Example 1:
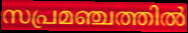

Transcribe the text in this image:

സപ്രമഞ്ചത്തിൽ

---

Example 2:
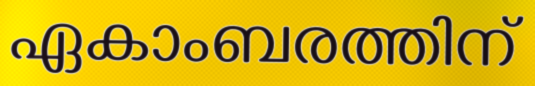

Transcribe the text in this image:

ഏകാംബരത്തിന്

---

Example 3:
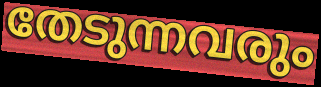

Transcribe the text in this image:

തേടുന്നവരും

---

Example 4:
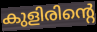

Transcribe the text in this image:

കുളിരിന്റെ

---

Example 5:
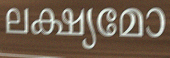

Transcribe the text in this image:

ലക്ഷ്യമോ